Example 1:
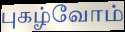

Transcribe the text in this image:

புகழ்வோம்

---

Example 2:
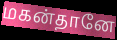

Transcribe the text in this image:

மகன்தானே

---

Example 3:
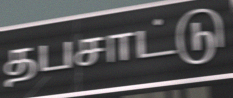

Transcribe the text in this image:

தபசாட்டு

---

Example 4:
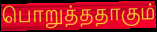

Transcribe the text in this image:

பொறுத்ததாகும்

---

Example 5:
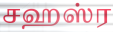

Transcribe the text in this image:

சஹஸ்ர